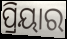
ପ୍ରିୟାର